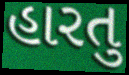
હારતુ